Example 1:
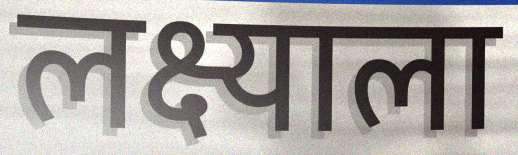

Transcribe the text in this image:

लक्ष्याला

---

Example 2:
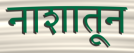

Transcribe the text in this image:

नाशातून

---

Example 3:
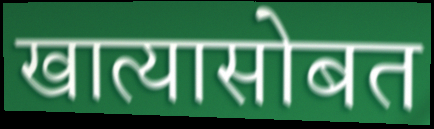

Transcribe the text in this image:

खात्यासोबत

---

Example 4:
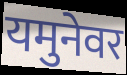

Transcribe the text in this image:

यमुनेवर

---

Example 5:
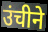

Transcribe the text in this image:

उंचीने